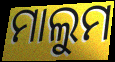
ମାଲୁମ